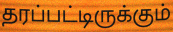
தரப்பட்டிருக்கும்